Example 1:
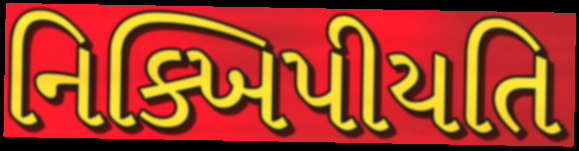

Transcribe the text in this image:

નિક્ખિપીયતિ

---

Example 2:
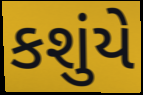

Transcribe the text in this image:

કશુંયે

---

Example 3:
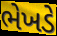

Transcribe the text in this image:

ભેખડે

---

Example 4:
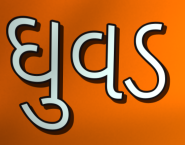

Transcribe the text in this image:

ઘુવડ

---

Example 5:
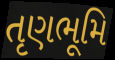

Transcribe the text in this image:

તૃણભૂમિ